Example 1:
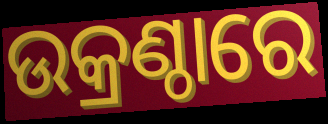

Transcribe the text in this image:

ଉକ୍ରଣ୍ଠାରେ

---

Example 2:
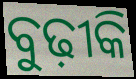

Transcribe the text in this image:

ବୁଢ଼ୀକି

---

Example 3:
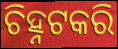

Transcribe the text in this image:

ଚିହ୍ନଟକରି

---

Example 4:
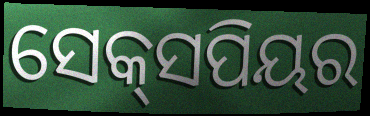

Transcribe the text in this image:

ସେକ୍‍ସପିୟର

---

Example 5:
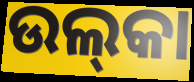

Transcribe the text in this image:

ଉଲ୍‌କା